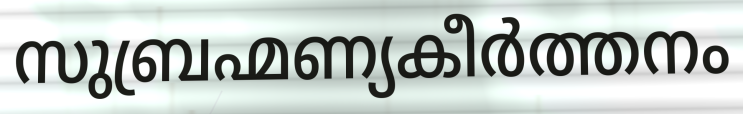
സുബ്രഹ്മണ്യകീർത്തനം